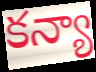
కన్యా